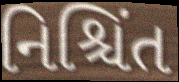
નિશ્ચિંત